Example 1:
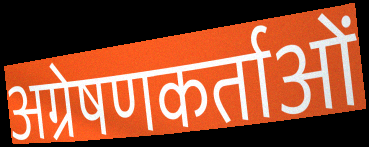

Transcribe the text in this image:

अग्रेषणकर्ताओं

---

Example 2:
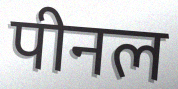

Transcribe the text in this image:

पीनल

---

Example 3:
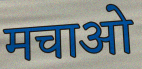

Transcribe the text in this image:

मचाओ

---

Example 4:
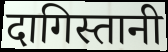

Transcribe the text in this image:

दागिस्तानी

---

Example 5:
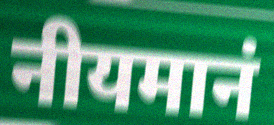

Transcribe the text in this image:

नीयमानं